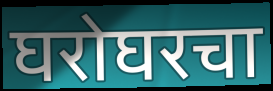
घरोघरचा